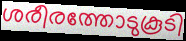
ശരീരത്തോടുകൂടി